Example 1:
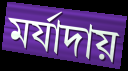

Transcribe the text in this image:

মর্যাদায়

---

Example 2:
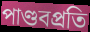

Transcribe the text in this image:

পাণ্ডবপ্রতি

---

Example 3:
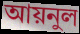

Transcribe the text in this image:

আয়নুল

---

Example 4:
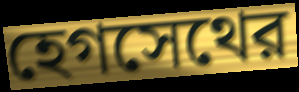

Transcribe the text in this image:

হেগসেথের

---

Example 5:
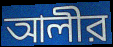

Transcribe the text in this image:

আলীর